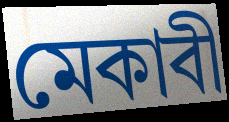
মেকাবী